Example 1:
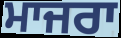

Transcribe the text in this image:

ਮਾਜਰਾ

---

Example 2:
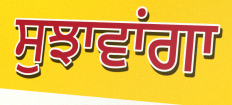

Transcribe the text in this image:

ਸੁਝਾਵਾਂਗਾ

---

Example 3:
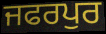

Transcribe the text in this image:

ਜਫਰਪੁਰ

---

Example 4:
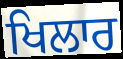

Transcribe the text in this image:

ਖਿਲਾਰ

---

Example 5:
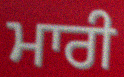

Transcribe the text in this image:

ਮਾਰੀ